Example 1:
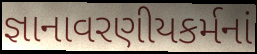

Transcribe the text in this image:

જ્ઞાનાવરણીયકર્મનાં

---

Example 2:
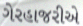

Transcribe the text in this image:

ગેરહાજરીએ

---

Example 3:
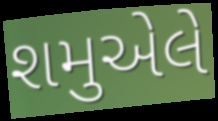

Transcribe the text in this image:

શમુએલે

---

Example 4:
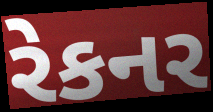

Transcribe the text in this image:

રેકનર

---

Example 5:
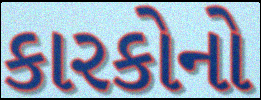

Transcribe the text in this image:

કારકોનો